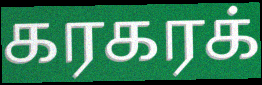
கரகரக்